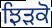
ਝਿੜਕੋ